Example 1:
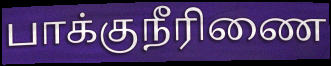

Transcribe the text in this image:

பாக்குநீரிணை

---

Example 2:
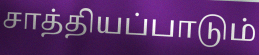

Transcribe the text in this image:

சாத்தியப்பாடும்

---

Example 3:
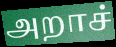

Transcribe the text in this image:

அறாச்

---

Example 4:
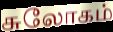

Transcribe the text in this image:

சுலோகம்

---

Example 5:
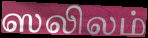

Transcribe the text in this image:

ஸலிலம்